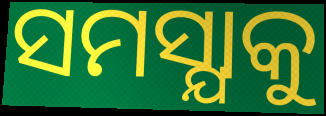
ସମସ୍ଯାକୁ